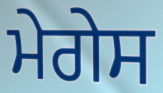
ਮੇਗੇਸ